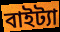
বাইট্যা